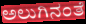
ಅಲುಗಿನಂತೆ